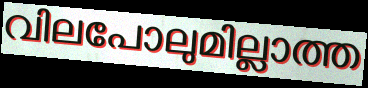
വിലപോലുമില്ലാത്ത